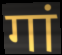
गां